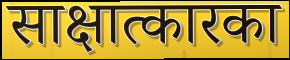
साक्षात्कारका